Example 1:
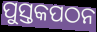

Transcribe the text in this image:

ପୁସ୍ତକପଠନ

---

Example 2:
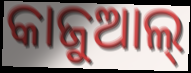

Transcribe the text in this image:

କାଜୁଆଲ୍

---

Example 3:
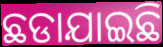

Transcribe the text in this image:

ଛଡାଯାଇଛି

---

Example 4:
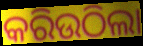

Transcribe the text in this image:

କରିଉଠିଲା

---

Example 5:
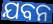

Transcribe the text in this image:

ଯବନ